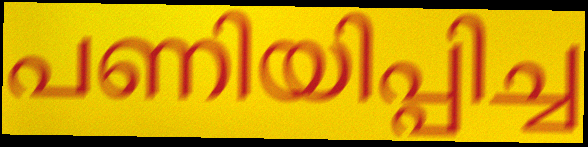
പണിയിപ്പിച്ച